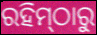
ରହିମ୍‌ଠାରୁ